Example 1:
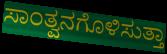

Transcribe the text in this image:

ಸಾಂತ್ವನಗೊಳಿಸುತ್ತಾ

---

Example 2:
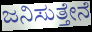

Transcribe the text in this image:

ಜನಿಸುತ್ತೇನೆ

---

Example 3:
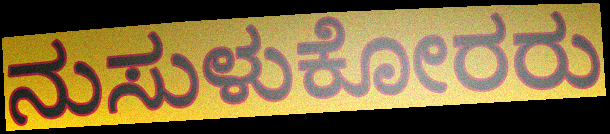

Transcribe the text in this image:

ನುಸುಳುಕೋರರು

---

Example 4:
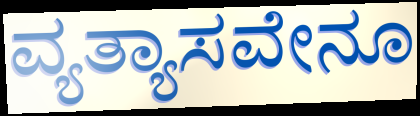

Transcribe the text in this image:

ವ್ಯತ್ಯಾಸವೇನೂ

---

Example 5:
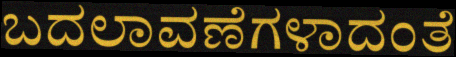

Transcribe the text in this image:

ಬದಲಾವಣೆಗಳಾದಂತೆ